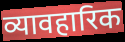
व्यावहारिक